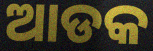
ଆଡକ